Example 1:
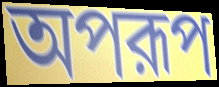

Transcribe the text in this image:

অপরূপ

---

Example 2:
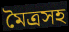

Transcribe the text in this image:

মৈত্রসহ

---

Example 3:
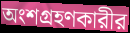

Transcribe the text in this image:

অংশগ্রহণকারীর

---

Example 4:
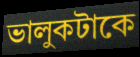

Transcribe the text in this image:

ভালুকটাকে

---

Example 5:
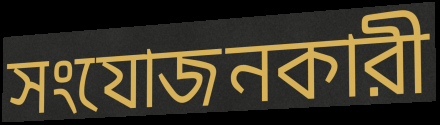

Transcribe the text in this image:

সংযোজনকারী